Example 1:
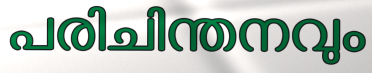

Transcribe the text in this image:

പരിചിന്തനവും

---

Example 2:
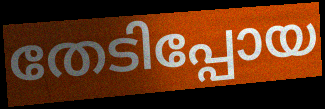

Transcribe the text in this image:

തേടിപ്പോയ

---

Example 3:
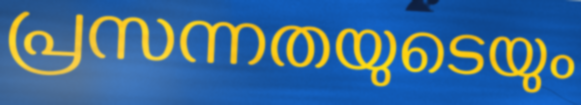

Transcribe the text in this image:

പ്രസന്നതയുടെയും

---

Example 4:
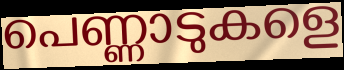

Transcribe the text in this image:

പെണ്ണാടുകളെ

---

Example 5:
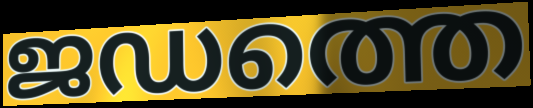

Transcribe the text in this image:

ജഡത്തെ